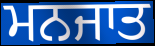
ਮਨਜਾਤ